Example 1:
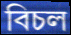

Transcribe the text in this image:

বিচল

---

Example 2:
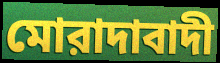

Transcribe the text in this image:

মোরাদাবাদী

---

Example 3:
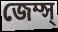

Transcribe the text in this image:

জেম্স্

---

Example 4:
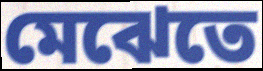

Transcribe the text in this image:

মেঝেতে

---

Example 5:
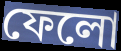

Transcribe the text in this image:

ফেলো